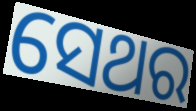
ସେଥର